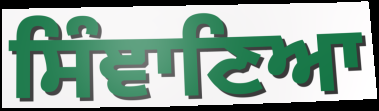
ਸਿੰਞਾਣਿਆ